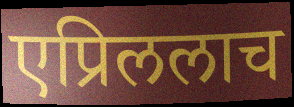
एप्रिललाच